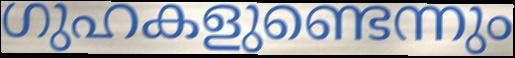
ഗുഹകളുണ്ടെന്നും